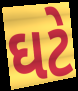
ઘટે